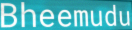
Bheemudu